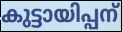
കുട്ടായിപ്പന്